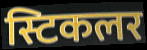
स्टिकलर